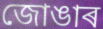
জোঙাৰ